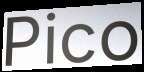
Pico